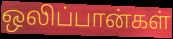
ஒலிப்பான்கள்